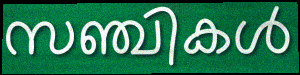
സഞ്ചികൾ